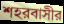
শহরবাসীর